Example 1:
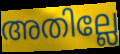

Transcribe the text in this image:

അതില്ലേ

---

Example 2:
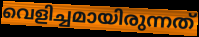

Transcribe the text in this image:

വെളിച്ചമായിരുന്നത്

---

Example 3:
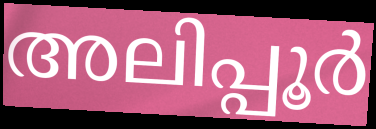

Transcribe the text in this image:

അലിപ്പൂർ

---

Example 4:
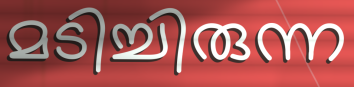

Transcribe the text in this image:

മടിച്ചിരുന്ന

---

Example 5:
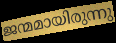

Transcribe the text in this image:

ജന്മമായിരുന്നു